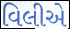
વિલીએ